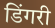
डिंगरी